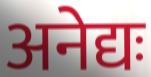
अनेद्यः